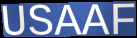
USAAF